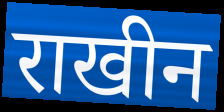
राखीन